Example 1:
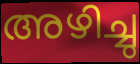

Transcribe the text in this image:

അഴിച്ചു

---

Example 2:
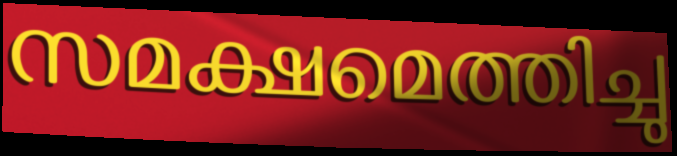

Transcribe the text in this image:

സമക്ഷമെത്തിച്ചു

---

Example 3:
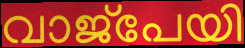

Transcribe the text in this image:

വാജ്പേയി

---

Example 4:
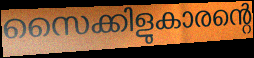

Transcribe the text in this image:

സൈക്കിളുകാരന്റെ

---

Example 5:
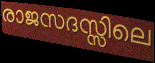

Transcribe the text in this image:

രാജസദസ്സിലെ